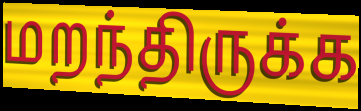
மறந்திருக்க